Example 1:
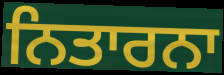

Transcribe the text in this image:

ਨਿਤਾਰਨਾ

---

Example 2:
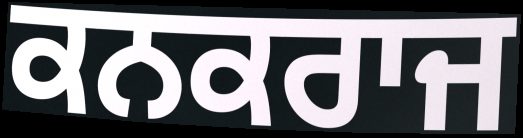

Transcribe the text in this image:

ਕਨਕਰਾਜ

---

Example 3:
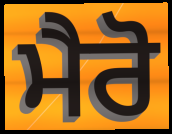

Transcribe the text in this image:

ਮੈਰੋ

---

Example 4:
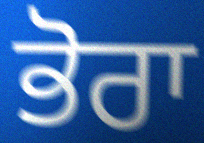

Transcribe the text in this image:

ਭੋਰਾ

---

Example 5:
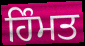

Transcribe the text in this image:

ਹਿੰਮਤ